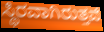
ಸ್ಥಿರವಾಗಿರುತ್ತವೆ